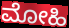
ಮೋಹಿ